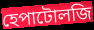
হেপাটোলজি